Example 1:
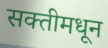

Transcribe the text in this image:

सक्तीमधून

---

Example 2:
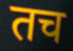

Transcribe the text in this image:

तच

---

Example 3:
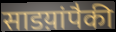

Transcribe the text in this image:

साडय़ांपैकी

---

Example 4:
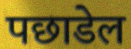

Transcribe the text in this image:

पछाडेल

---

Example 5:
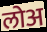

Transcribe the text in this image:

लोअ